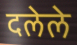
दलेले